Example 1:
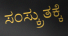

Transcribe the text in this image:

ಸಂಸ್ಕ್ರುತಕ್ಕೆ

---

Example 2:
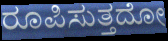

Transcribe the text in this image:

ರೂಪಿಸುತ್ತದೋ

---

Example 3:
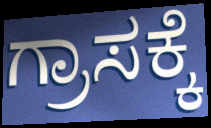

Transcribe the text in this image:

ಗ್ರಾಸಕ್ಕೆ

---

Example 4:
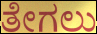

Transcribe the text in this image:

ತೇಗಲು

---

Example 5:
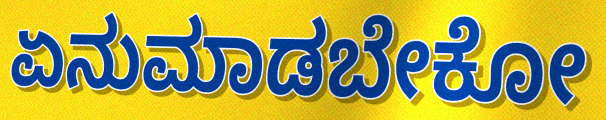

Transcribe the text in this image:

ಏನುಮಾಡಬೇಕೋ